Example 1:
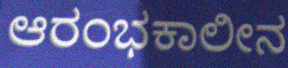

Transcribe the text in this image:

ಆರಂಭಕಾಲೀನ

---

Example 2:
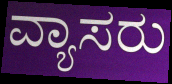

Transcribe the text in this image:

ವ್ಯಾಸರು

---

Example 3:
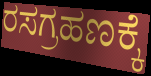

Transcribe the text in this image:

ರಸಗ್ರಹಣಕ್ಕೆ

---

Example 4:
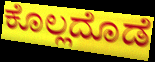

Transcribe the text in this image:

ಕೊಲ್ಲದೊಡೆ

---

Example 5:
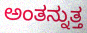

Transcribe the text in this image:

ಅಂತನ್ನುತ್ತ